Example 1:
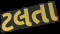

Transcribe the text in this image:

ટલતા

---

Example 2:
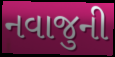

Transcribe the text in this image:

નવાજુની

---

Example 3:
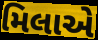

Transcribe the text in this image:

મિલાએ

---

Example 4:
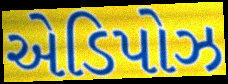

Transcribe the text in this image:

એડિપોઝ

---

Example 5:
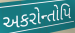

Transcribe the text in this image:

અકરોન્તોપિ